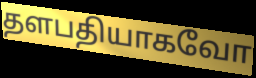
தளபதியாகவோ